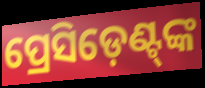
ପ୍ରେସିଡ଼େଣ୍ଟ୍‍ଙ୍କ